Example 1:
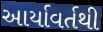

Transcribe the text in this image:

આર્યાવર્તથી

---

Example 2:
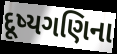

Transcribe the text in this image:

દૂષ્યગણિના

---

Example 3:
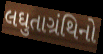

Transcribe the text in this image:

લઘુતાગ્રંથિનો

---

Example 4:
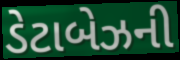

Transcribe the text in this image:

ડેટાબેઝની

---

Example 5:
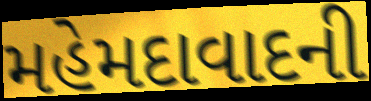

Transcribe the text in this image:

મહેમદાવાદની